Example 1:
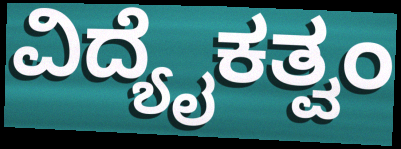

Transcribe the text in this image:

ವಿದ್ಯೈಕತ್ವಂ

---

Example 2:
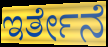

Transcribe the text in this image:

ಇರ್ತೇನೆ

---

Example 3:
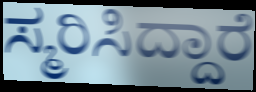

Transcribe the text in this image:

ಸ್ಮರಿಸಿದ್ದಾರೆ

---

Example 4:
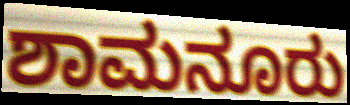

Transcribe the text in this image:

ಶಾಮನೂರು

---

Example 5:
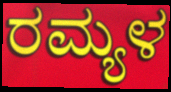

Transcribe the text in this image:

ರಮ್ಯಳ